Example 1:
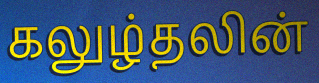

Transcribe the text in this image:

கலுழ்தலின்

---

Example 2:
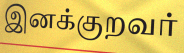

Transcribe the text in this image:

இனக்குறவர்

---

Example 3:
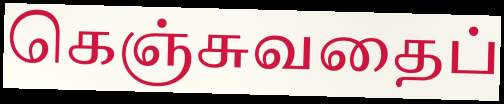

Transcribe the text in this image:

கெஞ்சுவதைப்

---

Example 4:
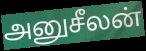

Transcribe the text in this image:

அனுசீலன்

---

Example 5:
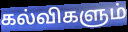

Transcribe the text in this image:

கல்விகளும்